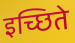
इच्छिते